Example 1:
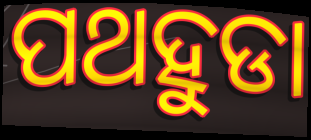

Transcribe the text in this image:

ପଥହୁଡା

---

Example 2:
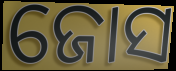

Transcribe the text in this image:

ଜୋସ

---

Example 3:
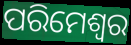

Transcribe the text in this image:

ପରିମେଶ୍ୱର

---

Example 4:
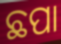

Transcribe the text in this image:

ଛପା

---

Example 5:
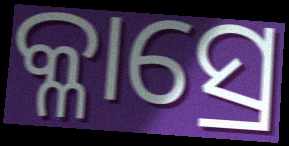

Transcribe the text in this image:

କ୍ଳାସ୍ରେ